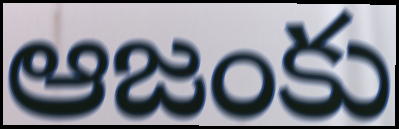
ఆజంకు